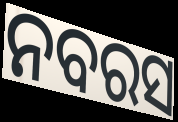
ନବରସ